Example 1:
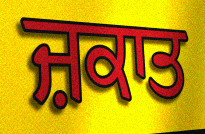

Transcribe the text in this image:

ਜ਼ਕਾਤ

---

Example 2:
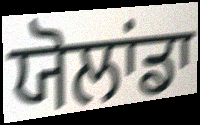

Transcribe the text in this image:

ਯੋਲਾਂਡਾ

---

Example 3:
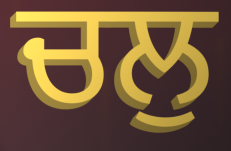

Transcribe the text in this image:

ਚਲੁ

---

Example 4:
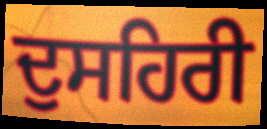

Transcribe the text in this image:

ਦੁਸਹਿਰੀ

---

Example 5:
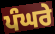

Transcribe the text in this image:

ਪੰਘਰੇ